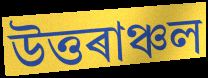
উত্তৰাঞ্চল